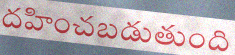
దహించబడుతుంది